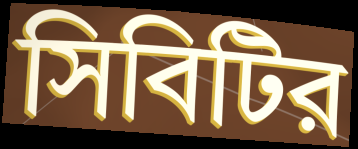
সিবিটির